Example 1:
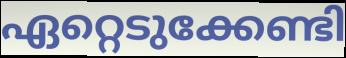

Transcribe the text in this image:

ഏറ്റെടുക്കേണ്ടി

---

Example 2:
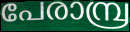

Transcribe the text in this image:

പേരാമ്പ്ര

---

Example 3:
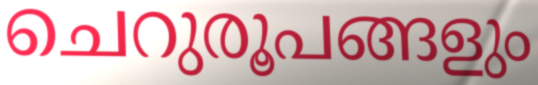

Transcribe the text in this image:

ചെറുരൂപങ്ങളും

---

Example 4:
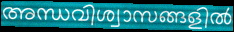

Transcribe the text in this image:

അന്ധവിശ്വാസങ്ങളിൽ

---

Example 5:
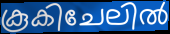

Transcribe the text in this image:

കൂകിചേലിൽ